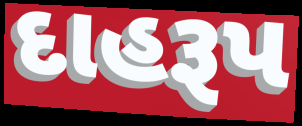
દાહરૂપ